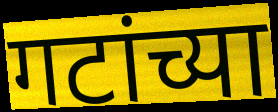
गटांच्या